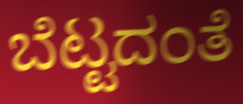
ಬೆಟ್ಟದಂತೆ